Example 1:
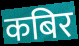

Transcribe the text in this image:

कबिर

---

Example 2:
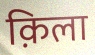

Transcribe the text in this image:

क़िला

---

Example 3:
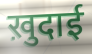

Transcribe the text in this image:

ख़ुदाई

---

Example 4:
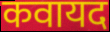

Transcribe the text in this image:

कवायद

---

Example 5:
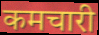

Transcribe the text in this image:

कमचारी